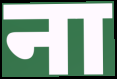
ना